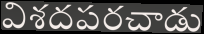
విశదపరచాడు